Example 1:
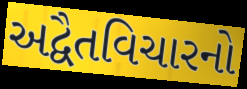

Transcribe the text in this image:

અદ્વૈતવિચારનો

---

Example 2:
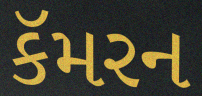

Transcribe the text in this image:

કૅમરન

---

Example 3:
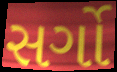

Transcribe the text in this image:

સર્ગો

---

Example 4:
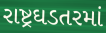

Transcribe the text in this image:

રાષ્ટ્રઘડતરમાં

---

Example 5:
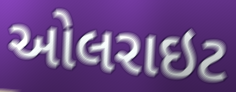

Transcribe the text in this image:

ઓલરાઇટ